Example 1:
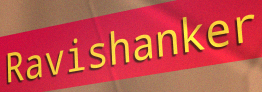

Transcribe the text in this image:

Ravishanker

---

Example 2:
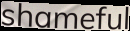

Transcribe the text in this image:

shameful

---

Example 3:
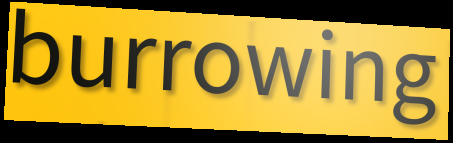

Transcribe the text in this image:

burrowing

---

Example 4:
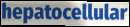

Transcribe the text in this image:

hepatocellular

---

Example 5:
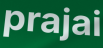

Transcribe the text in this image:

prajai